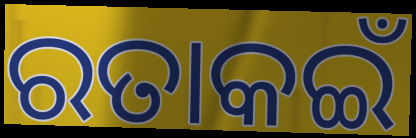
ରତାକଇଁ